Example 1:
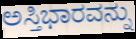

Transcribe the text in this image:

ಅಸ್ತಿಭಾರವನ್ನು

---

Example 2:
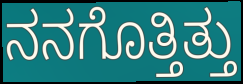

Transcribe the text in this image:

ನನಗೊತ್ತಿತ್ತು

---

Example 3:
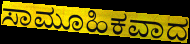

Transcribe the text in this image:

ಸಾಮೂಹಿಕವಾದ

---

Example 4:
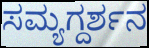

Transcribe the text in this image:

ಸಮ್ಯಗ್ದರ್ಶನ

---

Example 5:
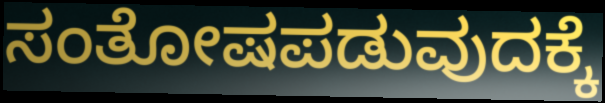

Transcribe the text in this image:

ಸಂತೋಷಪಡುವುದಕ್ಕೆ